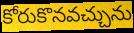
కోరుకొనవచ్చును